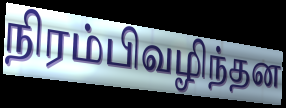
நிரம்பிவழிந்தன